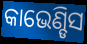
କାଭେଣ୍ଡିସ